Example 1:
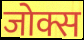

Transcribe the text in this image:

जोक्स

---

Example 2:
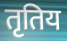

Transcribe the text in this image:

तृतिय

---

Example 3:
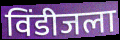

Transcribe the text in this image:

विंडीजला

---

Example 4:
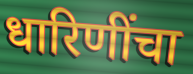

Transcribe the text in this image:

धारिणींचा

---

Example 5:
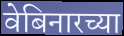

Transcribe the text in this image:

वेबिनारच्या